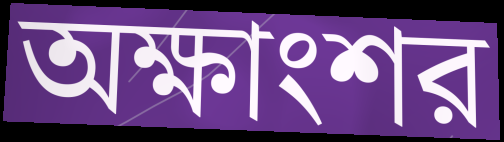
অক্ষাংশর